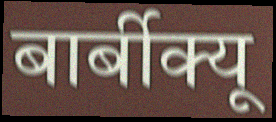
बार्बीक्यू